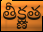
తీక్ష్ణత